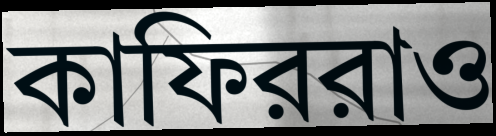
কাফিররাও